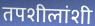
तपशीलांशी